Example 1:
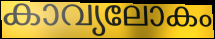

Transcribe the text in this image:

കാവ്യലോകം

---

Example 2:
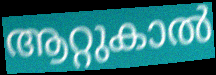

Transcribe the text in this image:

ആറ്റുകാൽ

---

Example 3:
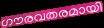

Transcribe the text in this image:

ഗൗരവതരമായി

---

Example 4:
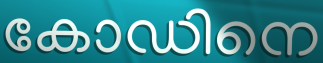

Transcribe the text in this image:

കോഡിനെ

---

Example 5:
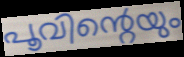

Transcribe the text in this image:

പൂവിന്റെയും